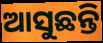
ଆସୁଛନ୍ତି